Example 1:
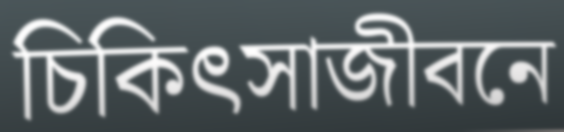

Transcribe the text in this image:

চিকিৎসাজীবনে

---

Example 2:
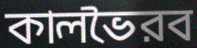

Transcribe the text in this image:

কালভৈরব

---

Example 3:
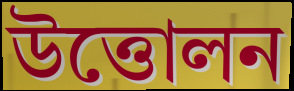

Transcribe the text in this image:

উত্তোলন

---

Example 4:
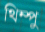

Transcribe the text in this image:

থিম্পু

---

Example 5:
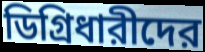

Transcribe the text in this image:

ডিগ্রিধারীদের